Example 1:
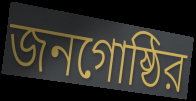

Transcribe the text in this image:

জনগোষ্ঠির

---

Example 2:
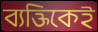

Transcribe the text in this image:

ব্যক্তিকেই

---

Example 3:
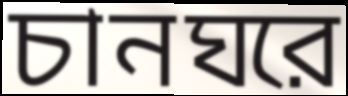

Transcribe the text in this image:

চানঘরে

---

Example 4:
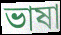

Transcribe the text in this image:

ভাষা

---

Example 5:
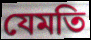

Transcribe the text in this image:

যেমতি